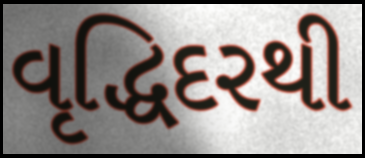
વૃદ્ધિદરથી